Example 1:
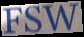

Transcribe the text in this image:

FSW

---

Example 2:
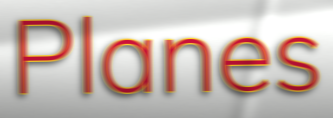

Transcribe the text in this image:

Planes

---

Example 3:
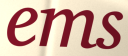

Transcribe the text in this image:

ems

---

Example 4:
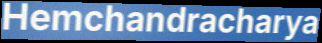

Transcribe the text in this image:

Hemchandracharya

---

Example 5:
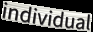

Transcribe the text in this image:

individual